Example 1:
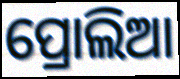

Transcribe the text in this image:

ପ୍ରୋଲିଆ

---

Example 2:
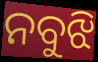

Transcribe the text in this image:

ନବୁଝି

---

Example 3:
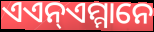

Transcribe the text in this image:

ଏଏନ୍ଏମ୍ମାନେ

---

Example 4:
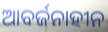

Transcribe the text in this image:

ଆବର୍ଜନାହୀନ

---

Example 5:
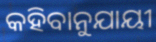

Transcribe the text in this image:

କହିବାନୁଯାୟୀ